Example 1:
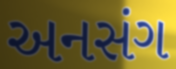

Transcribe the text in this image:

અનસંગ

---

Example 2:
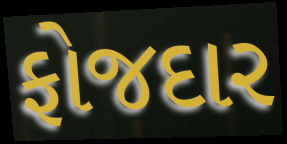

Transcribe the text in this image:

ફોજદાર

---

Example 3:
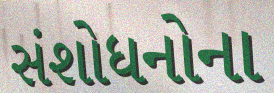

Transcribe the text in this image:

સંશોધનોના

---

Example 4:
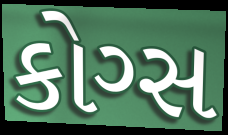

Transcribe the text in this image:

કોગ્સ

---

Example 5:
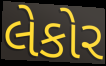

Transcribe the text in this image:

લેકોર